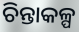
ଚିନ୍ତାକଳ୍ପ